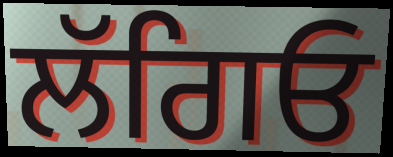
ਲੱਗਿਓ